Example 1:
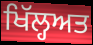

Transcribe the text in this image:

ਖਿੱਲ੍ਹਅਤ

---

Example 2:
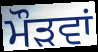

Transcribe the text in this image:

ਮੌੜਵਾਂ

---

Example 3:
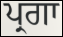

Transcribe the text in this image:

ਪ੍ਰਗਾ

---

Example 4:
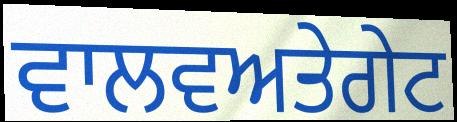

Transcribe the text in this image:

ਵਾਲਵਅਤੇਗੇਟ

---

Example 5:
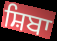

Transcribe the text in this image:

ਸ਼ਿਬਾ